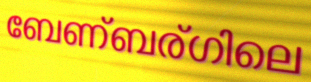
ബേണ്ബര്ഗിലെ